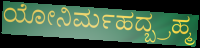
ಯೋನಿರ್ಮಹದ್ಬ್ರಹ್ಮ